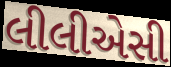
લીલીએસી